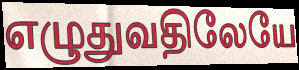
எழுதுவதிலேயே